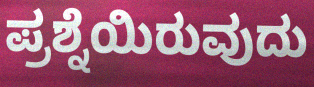
ಪ್ರಶ್ನೆಯಿರುವುದು